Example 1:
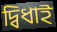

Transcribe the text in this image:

দ্বিধাই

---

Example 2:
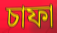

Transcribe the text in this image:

চাফা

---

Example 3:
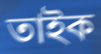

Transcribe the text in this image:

তাইক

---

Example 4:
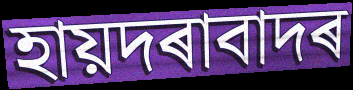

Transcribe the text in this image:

হায়দৰাবাদৰ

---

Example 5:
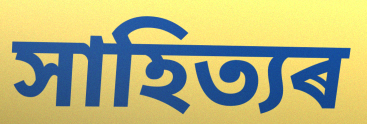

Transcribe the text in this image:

সাহিত্যৰ